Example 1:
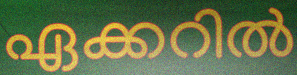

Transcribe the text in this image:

ഏക്കറിൽ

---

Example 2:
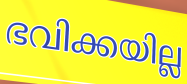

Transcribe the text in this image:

ഭവിക്കയില്ല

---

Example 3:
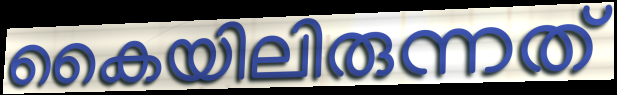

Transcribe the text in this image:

കൈയിലിരുന്നത്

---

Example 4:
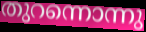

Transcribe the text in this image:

തുറന്നൊന്നു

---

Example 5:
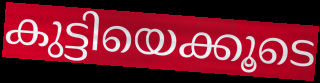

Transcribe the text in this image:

കുട്ടിയെക്കൂടെ